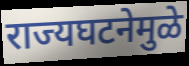
राज्यघटनेमुळे